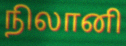
நிலானி